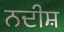
ਨਦੀਸ਼